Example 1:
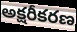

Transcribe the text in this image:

అక్షరీకరణ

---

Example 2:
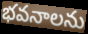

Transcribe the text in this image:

భవనాలను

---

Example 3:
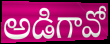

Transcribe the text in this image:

అడిగావో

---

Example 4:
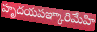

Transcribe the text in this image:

హృదయపఞ్కారిమేహి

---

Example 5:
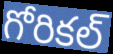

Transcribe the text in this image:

గోరికల్